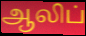
ஆலிப்